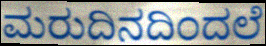
ಮರುದಿನದಿಂದಲೆ